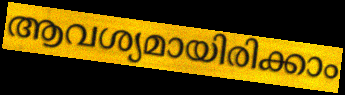
ആവശ്യമായിരിക്കാം